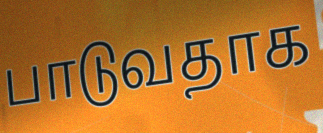
பாடுவதாக